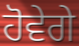
ਹੋਵੇਗੇ